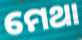
ମେଥା